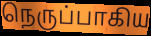
நெருப்பாகிய